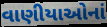
વાણીયાઓનાં